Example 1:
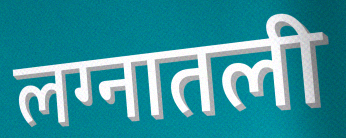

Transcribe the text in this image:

लग्नातली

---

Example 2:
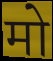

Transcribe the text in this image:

मो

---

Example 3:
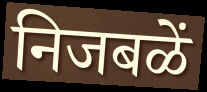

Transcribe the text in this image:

निजबळें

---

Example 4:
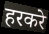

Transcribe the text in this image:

हरकरे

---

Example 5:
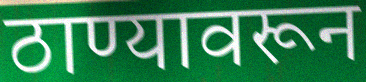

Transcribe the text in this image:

ठाण्यावरून